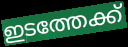
ഇടത്തേക്ക്